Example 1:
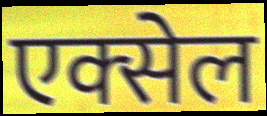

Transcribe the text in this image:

एक्‍सेल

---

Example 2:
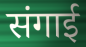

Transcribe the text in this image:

संगाई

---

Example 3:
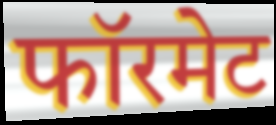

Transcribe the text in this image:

फॉरमेट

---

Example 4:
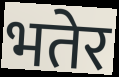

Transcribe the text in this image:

भतेर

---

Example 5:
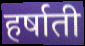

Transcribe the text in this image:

हर्षाती